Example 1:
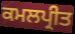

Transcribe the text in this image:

ਕਮਲਪ੍ਰੀਤ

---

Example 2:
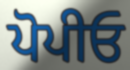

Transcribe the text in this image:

ਪੋਪੀਓ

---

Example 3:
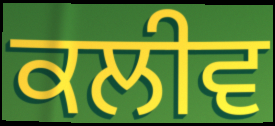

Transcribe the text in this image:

ਕਲੀਵ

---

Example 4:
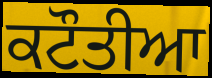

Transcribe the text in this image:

ਕਟੌਤੀਆ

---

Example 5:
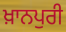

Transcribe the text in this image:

ਖ਼ਾਨਪੁਰੀ